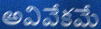
అవివేకమే